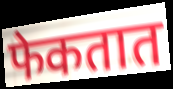
फेकतात